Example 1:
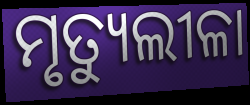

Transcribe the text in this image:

ମୃତ୍ୟୁଲୀଳା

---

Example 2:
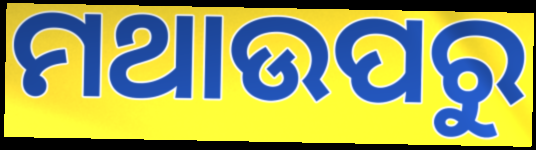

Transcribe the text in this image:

ମଥାଉପରୁ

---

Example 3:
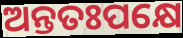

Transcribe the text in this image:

ଅନ୍ତତଃପକ୍ଷେ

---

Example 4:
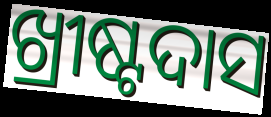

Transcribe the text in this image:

ଖ୍ରୀଷ୍ଟଦାସ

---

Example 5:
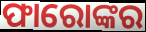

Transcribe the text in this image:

ଫାରୋଙ୍କର